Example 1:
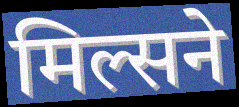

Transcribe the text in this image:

मिल्सने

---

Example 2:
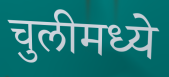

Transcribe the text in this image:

चुलीमध्ये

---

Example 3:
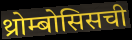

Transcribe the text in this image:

थ्रोम्बोसिसची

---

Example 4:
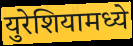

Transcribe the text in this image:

युरेशियामध्ये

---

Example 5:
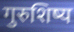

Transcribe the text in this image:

गुरुशिष्य